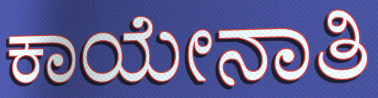
ಕಾಯೇನಾತಿ